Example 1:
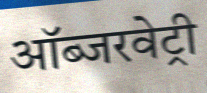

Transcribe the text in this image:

ऑब्जरवेट्री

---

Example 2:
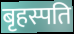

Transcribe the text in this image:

बृहस्‍पति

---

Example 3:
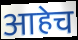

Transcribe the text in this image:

आहेच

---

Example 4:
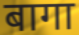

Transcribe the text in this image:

बागा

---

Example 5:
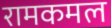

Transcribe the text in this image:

रामकमल